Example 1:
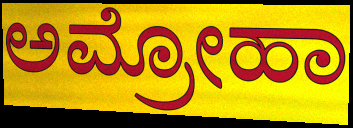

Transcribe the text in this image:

ಅಮ್ರೋಹಾ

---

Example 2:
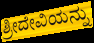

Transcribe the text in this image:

ಶ್ರೀದೇವಿಯನ್ನು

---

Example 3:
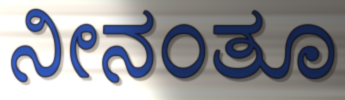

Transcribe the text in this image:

ನೀನಂತೂ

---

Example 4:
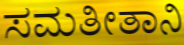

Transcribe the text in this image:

ಸಮತೀತಾನಿ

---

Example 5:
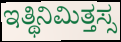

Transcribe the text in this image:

ಇತ್ಥಿನಿಮಿತ್ತಸ್ಸ